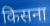
किसना